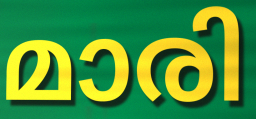
മാരി